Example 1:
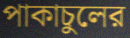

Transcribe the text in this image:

পাকাচুলের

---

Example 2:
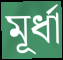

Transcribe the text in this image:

মূর্ধা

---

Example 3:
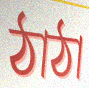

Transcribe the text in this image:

ঠাঠা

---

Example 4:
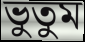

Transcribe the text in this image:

ভুতুম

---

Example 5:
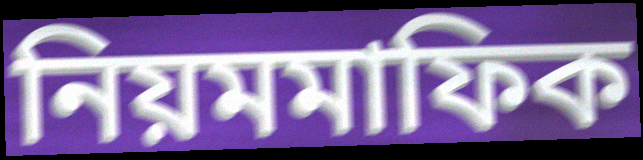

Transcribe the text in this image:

নিয়মমাফিক